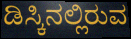
ಡಿಸ್ಕಿನಲ್ಲಿರುವ